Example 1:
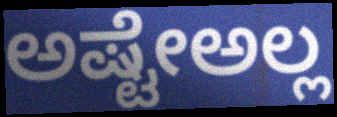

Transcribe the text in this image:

ಅಷ್ಟೇಅಲ್ಲ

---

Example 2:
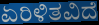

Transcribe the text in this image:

ಏರಿಳಿತವಿದೆ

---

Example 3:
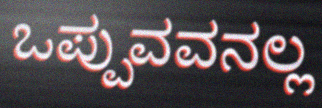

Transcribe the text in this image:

ಒಪ್ಪುವವನಲ್ಲ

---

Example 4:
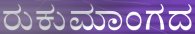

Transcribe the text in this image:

ರುಕುಮಾಂಗದ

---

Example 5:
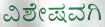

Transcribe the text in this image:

ವಿಶೇಷವಗಿ